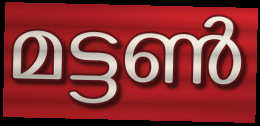
മട്ടൺ